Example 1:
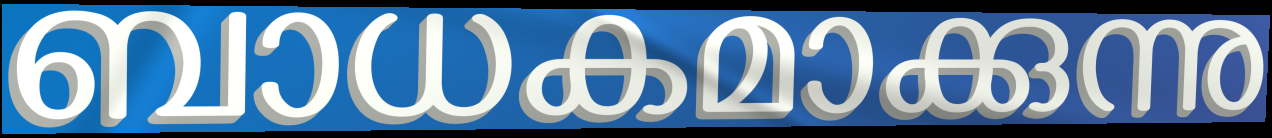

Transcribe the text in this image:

ബാധകമാക്കുന്നു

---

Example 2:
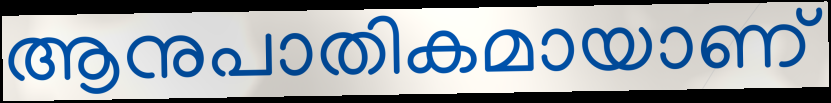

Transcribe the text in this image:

ആനുപാതികമായാണ്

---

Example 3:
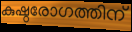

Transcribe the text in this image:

കുഷ്ഠരോഗത്തിന്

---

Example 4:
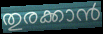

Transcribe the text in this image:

തുരക്കാൻ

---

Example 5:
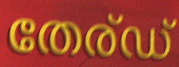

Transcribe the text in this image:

തേര്ഡ്